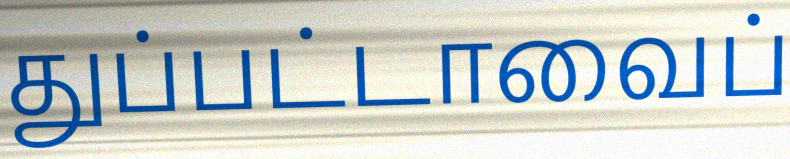
துப்பட்டாவைப்